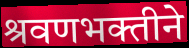
श्रवणभक्तीने